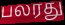
பலரது